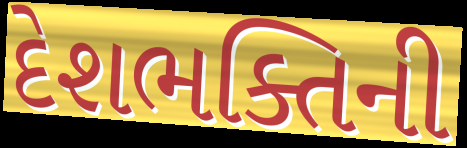
દેશભક્તિની